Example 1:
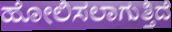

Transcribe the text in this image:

ಹೋಲಿಸಲಾಗುತ್ತಿದೆ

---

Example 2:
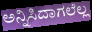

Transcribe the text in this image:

ಅನ್ನಿಸಿದಾಗಲೆಲ್ಲ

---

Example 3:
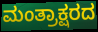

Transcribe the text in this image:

ಮಂತ್ರಾಕ್ಷರದ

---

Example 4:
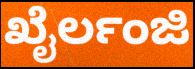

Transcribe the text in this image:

ಖೈರ್ಲಂಜಿ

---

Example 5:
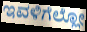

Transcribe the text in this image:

ಇವಳಿಗೆಲ್ಲೋ